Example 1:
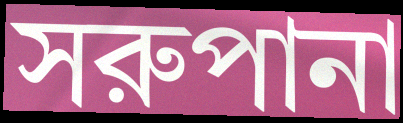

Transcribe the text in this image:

সরুপানা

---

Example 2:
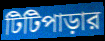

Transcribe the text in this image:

টিটিপাড়ার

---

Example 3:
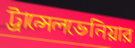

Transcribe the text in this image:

ট্রান্সেলভেনিয়ার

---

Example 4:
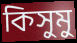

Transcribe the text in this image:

কিসুমু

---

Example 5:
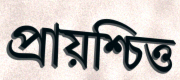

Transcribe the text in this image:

প্রায়শ্চিত্ত